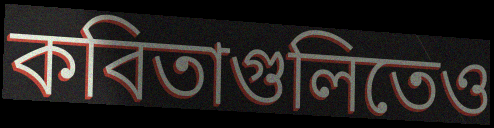
কবিতাগুলিতেও